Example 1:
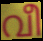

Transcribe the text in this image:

വീ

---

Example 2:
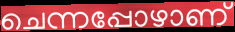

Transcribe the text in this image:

ചെന്നപ്പോഴാണ്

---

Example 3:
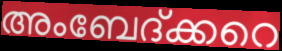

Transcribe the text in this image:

അംബേദ്ക്കറെ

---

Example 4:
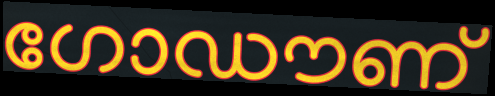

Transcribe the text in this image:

ഗോഡൗണ്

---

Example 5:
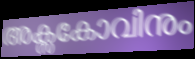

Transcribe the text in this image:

അക്സകോവിനും